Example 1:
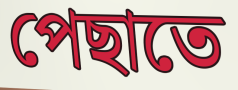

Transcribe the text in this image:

পেছাতে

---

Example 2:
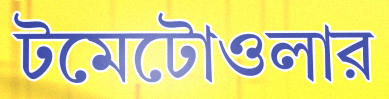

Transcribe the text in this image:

টমেটোওলার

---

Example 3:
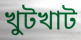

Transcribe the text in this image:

খুটখাট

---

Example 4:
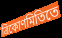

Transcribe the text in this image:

ত্রিকোণমিতিতে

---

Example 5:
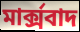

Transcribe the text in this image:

মার্ক্সবাদ